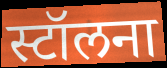
स्टॉलना